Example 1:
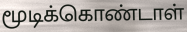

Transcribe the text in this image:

மூடிக்கொண்டாள்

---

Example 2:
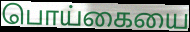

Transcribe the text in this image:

பொய்கையை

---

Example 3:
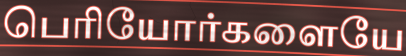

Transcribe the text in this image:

பெரியோர்களையே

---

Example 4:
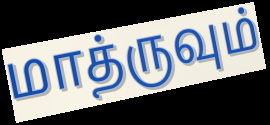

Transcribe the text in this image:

மாத்ருவும்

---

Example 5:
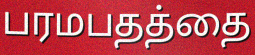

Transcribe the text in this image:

பரமபதத்தை